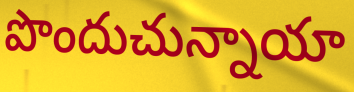
పొందుచున్నాయా